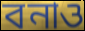
বনাও